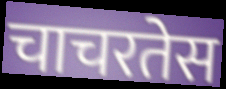
चाचरतेस